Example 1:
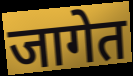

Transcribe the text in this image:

जागेत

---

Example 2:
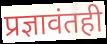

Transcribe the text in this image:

प्रज्ञावंतही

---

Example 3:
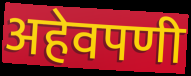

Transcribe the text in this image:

अहेवपणी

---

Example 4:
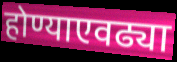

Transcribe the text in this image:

होण्याएवढ्या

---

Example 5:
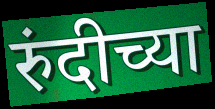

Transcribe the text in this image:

रुंदीच्या